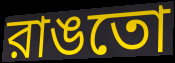
রাঙতো